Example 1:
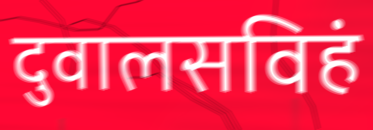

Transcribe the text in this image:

दुवालसविहं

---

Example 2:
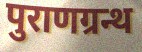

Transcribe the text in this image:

पुराणग्रन्थ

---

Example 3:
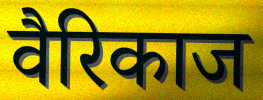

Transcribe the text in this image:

वैरिकाज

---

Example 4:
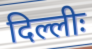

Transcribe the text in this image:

दिल्लीः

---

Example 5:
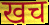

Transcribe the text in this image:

खच